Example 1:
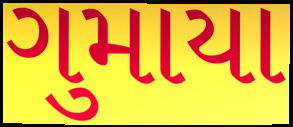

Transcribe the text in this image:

ગુમાયા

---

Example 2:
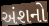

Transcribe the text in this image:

અંશનો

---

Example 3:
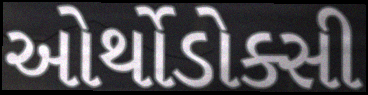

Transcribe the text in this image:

ઓર્થોડોક્સી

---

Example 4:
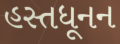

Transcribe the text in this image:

હસ્તધૂનન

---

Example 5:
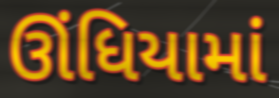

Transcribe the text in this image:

ઊંધિયામાં